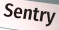
Sentry